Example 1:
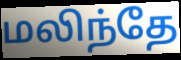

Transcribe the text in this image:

மலிந்தே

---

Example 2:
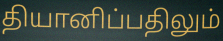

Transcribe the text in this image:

தியானிப்பதிலும்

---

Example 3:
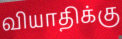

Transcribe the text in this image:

வியாதிக்கு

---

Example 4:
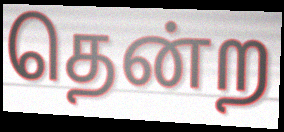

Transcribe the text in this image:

தென்ற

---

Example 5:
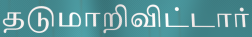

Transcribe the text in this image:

தடுமாறிவிட்டார்